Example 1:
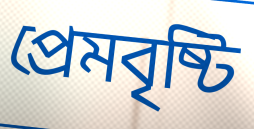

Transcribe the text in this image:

প্রেমবৃষ্টি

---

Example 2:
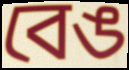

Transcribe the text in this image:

বেঙ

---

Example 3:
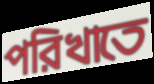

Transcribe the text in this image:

পরিখাতে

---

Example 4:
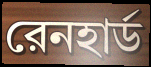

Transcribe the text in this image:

রেনহার্ড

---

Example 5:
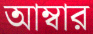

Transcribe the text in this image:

আম্বার